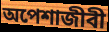
অপেশাজীবী